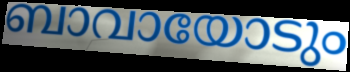
ബാവായോടും